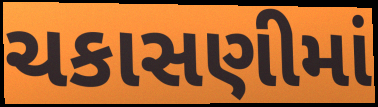
ચકાસણીમાં